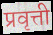
प्रवृत्ती